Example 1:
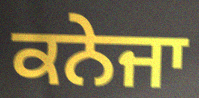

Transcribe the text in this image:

ਕਨੇਜਾ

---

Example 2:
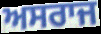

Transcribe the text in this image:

ਅਸਰਾਜ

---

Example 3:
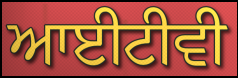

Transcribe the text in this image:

ਆਈਟੀਵੀ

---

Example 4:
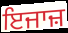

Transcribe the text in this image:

ਇਜਾਜ਼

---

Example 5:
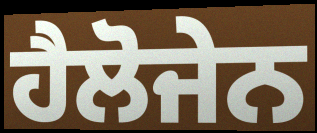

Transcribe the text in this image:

ਹੈਲੋਜੇਨ